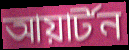
আয়ার্টন